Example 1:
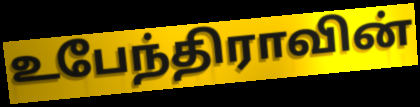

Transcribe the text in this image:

உபேந்திராவின்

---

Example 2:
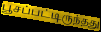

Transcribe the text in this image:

பூசப்பட்டிருந்தது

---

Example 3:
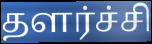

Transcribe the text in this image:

தளர்ச்சி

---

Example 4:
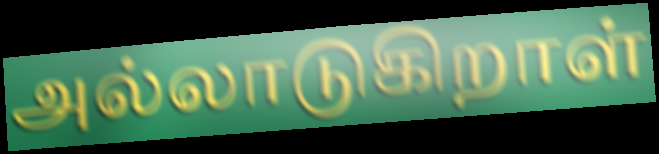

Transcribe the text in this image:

அல்லாடுகிறாள்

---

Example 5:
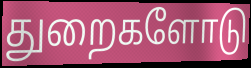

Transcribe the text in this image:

துறைகளோடு